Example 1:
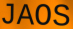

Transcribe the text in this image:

JAOS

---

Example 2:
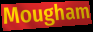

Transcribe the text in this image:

Mougham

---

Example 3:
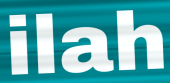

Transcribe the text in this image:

ilah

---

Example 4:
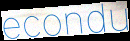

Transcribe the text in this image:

econdu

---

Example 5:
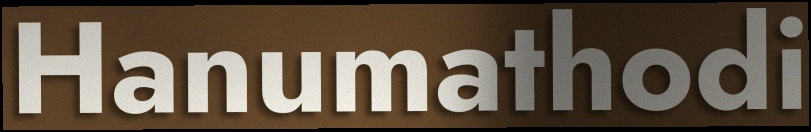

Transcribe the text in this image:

Hanumathodi